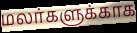
மலர்களுக்காக